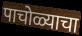
पाचोळ्याचा